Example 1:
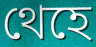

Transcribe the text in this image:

থেহে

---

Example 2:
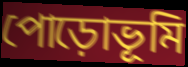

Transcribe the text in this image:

পোড়োভূমি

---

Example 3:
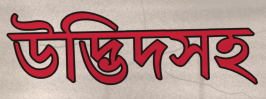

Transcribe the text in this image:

উদ্ভিদসহ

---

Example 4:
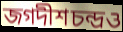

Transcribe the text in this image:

জগদীশচন্দ্রও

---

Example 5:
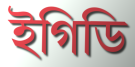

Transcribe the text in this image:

ইগিডি